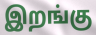
இறங்கு